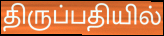
திருப்பதியில்